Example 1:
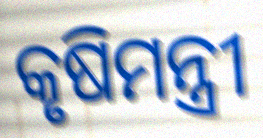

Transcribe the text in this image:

କୃଷିମନ୍ତ୍ରୀ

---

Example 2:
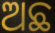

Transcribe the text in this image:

ଅଛ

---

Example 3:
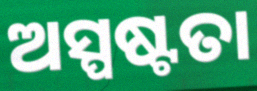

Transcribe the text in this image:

ଅସ୍ପଷ୍ଟତା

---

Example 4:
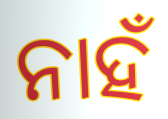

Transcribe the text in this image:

ନାହଁ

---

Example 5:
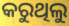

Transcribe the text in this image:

କରୁଥିଲୁ